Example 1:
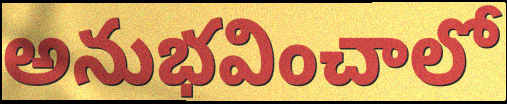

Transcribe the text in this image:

అనుభవించాలో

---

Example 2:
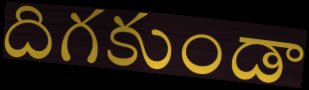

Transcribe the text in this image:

దిగకుండా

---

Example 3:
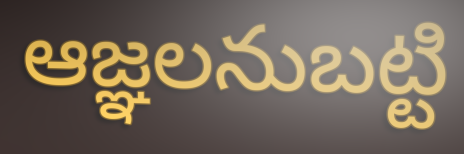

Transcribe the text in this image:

ఆజ్ఞలనుబట్టి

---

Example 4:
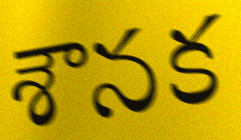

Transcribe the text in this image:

శౌనక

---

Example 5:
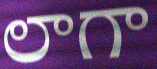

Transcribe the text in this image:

లాగా